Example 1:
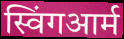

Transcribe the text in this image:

स्विंगआर्म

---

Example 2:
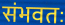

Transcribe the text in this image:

संभवतः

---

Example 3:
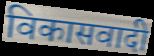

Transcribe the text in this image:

विकासवादी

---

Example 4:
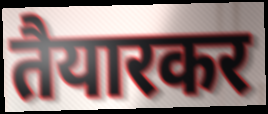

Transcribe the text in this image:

तैयारकर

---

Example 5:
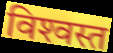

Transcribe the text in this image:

विश्‍वस्त